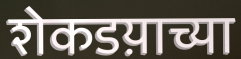
शेकडय़ाच्या